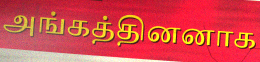
அங்கத்தினனாக